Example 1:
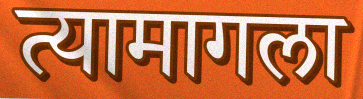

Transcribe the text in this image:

त्यामागला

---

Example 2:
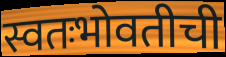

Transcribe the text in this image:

स्वतःभोवतीची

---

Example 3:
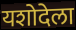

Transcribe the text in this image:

यशोदेला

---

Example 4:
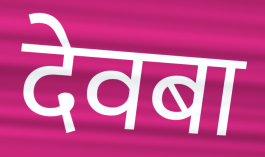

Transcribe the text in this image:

देवबा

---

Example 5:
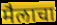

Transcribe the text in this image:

मैलाचा